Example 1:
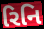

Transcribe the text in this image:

રિનિ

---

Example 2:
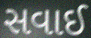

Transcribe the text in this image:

સવાઈ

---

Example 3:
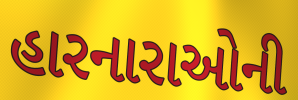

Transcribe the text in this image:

હારનારાઓની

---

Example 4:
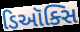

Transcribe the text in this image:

ડિઑક્સિ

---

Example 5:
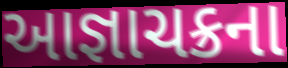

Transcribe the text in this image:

આજ્ઞાચક્રના